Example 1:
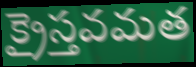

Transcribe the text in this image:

క్రైస్తవమత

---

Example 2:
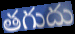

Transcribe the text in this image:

తగుదు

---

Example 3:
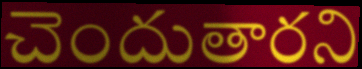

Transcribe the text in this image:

చెందుతారని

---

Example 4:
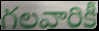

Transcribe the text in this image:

గలవారికీ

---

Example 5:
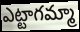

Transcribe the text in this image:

ఎట్టాగమ్మా